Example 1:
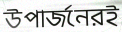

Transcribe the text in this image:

উপার্জনেরই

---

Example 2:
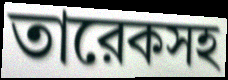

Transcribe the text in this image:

তারেকসহ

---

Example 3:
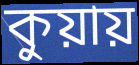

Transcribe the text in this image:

কুয়ায়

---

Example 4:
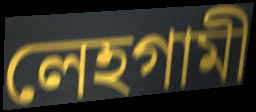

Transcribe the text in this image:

লেহগামী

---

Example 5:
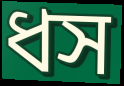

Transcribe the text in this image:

ধস